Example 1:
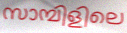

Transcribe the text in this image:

സാമ്പിളിലെ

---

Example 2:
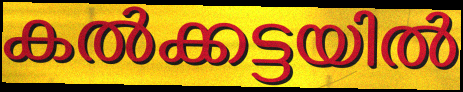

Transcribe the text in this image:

കൽക്കട്ടയിൽ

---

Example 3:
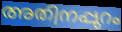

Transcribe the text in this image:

അതിനപ്പുറം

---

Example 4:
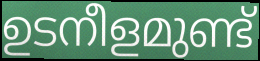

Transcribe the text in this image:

ഉടനീളമുണ്ട്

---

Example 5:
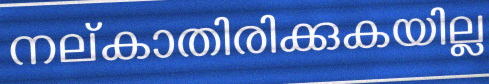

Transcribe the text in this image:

നല്‌കാതിരിക്കുകയില്ല